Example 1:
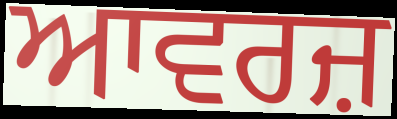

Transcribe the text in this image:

ਆਵਰਜ਼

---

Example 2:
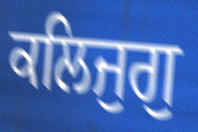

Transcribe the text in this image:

ਕਲਿਜੁਗੁ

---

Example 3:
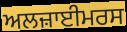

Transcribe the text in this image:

ਅਲਜ਼ਾਈਮਰਸ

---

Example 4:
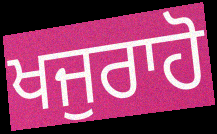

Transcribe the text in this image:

ਖਜੁਰਾਹੋ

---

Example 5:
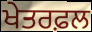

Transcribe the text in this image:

ਖੇਤਰਫ਼ਲ